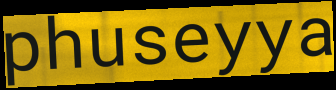
phuseyya